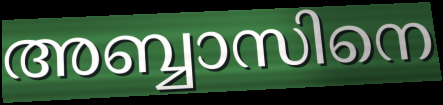
അബ്ബാസിനെ